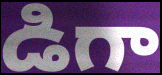
డిగా